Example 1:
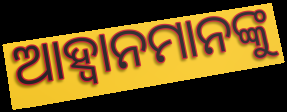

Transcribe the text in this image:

ଆହ୍ୱାନମାନଙ୍କୁ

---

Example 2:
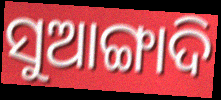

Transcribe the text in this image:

ସୁଆଙ୍ଗାଦି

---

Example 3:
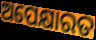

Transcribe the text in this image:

ଅପେକ୍ଷାରତ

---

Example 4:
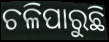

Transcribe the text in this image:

ଚଳିପାରୁଛି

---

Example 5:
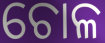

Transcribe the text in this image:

ଚୋଳ